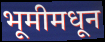
भूमीमधून